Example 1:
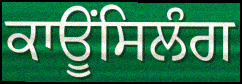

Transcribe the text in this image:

ਕਾਊਂਸਿਲੰਗ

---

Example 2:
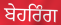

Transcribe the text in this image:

ਬੇਹਰਿੰਗ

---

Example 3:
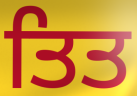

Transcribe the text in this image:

ਤਿਤ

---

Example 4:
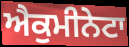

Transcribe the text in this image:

ਐਕੁਮੀਨੇਟਾ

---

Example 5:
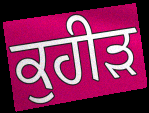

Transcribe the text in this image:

ਕੁਹੀੜ